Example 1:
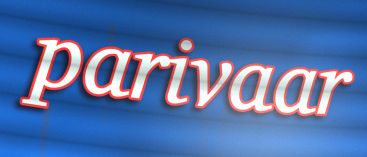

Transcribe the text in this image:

parivaar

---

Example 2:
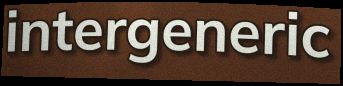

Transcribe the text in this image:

intergeneric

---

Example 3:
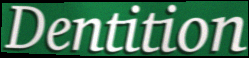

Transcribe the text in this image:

Dentition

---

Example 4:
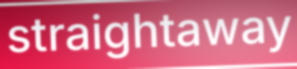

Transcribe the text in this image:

straightaway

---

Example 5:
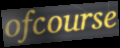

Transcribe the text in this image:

ofcourse